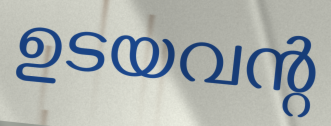
ഉടയവന്റ